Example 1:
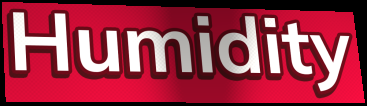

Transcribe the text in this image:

Humidity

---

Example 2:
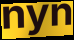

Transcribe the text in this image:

nyn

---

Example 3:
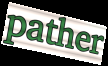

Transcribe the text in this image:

pather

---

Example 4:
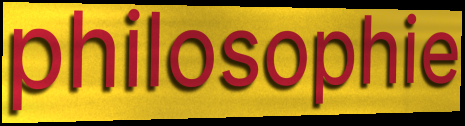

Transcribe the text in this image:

philosophie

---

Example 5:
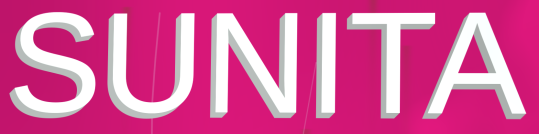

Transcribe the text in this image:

SUNITA